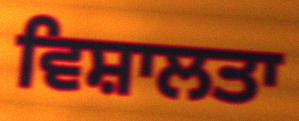
ਵਿਸ਼ਾਲਤਾ